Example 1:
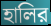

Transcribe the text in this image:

হালির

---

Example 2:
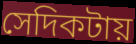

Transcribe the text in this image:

সেদিকটায়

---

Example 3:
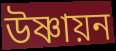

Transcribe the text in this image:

উষ্ণায়ন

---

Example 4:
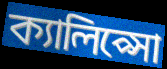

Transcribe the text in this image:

ক্যালিপ্সো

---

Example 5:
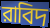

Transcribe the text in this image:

রাবিদ